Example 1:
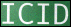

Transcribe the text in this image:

ICID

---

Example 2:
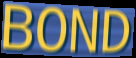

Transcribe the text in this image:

BOND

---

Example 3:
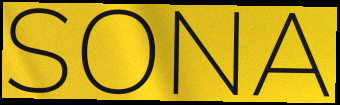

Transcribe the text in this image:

SONA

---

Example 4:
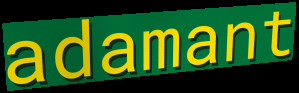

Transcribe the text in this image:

adamant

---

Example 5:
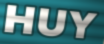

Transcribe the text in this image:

HUY